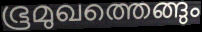
ഭൂമുഖത്തെങ്ങും